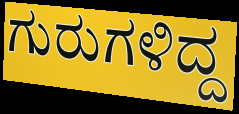
ಗುರುಗಳಿದ್ದ